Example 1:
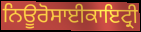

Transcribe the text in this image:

ਨਿਊਰੋਸਾਈਕਾਇਟ੍ਰੀ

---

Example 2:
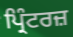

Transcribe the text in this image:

ਪ੍ਰਿੰਟਰਜ਼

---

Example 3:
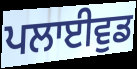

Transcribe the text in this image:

ਪਲਾਈਵੁਡ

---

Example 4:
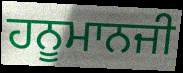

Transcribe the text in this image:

ਹਨੂਮਾਨਜੀ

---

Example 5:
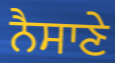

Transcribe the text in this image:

ਨੈਸਾਣੇ